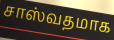
சாஸ்வதமாக